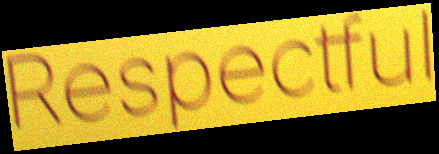
Respectful